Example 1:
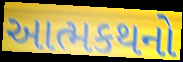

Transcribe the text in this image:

આત્મકથનો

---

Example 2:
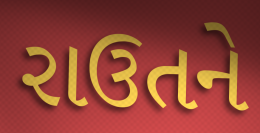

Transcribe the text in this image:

રાઉતને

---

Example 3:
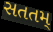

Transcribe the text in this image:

સતતમ્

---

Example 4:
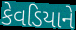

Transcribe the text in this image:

કેવડિયાને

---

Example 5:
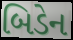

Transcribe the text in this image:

બિડેન